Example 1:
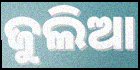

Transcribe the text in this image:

ଜୁଲିଆ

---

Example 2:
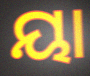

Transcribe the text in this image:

ୟା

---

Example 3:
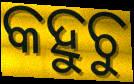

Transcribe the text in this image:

କହୁଚୁ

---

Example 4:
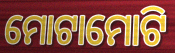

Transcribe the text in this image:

ମୋଟାମୋଟି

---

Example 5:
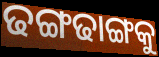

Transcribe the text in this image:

ଢଙ୍ଗଢାଙ୍ଗକୁ